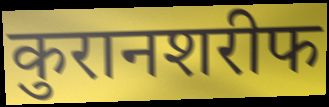
कुरानशरीफ